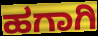
ಹಗಾಗಿ